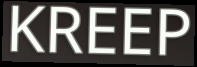
KREEP